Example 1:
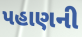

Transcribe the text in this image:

પહાણની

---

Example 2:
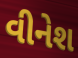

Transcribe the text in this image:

વીનેશ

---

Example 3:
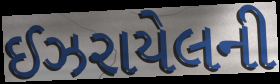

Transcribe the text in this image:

ઈઝરાયેલની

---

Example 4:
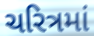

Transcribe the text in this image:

ચરિત્રમાં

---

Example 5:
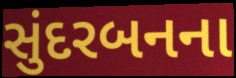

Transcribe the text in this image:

સુંદરબનના